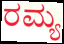
ರಮ್ಯ